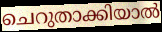
ചെറുതാക്കിയാൽ